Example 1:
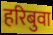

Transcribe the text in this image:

हरिबुवा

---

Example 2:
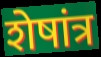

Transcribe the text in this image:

शेषांत्र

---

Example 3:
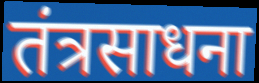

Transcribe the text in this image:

तंत्रसाधना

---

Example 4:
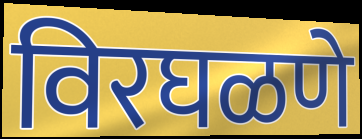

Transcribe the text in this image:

विरघळणे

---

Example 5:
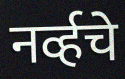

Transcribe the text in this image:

नर्व्हचे